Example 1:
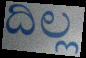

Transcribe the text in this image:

ದಿಲ್ಲ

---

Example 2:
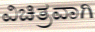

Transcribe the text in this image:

ವಿಚಿತ್ರವಾಗಿ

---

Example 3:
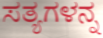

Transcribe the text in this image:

ಸತ್ಯಗಳನ್ನ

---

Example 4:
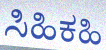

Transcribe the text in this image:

ಸಿಹಿಕಹಿ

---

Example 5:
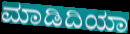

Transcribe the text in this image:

ಮಾಡಿದಿಯಾ